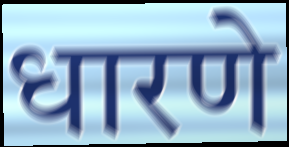
धारणे